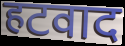
हटवाद